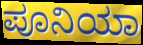
ಪೂನಿಯಾ